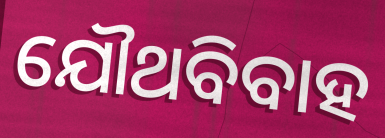
ଯୌଥବିବାହ